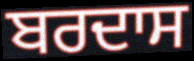
ਬਰਦਾਸ